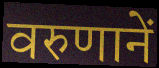
वरुणानें